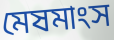
মেষমাংস